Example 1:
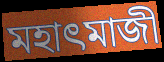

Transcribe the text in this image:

মহাৎমাজী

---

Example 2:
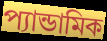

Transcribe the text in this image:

প্যান্ডামিক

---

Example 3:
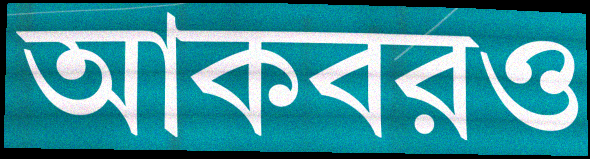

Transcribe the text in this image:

আকবরও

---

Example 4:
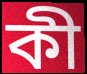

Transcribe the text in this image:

কী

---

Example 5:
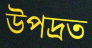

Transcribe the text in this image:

উপদ্রত